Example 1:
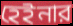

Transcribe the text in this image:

হেইনার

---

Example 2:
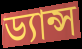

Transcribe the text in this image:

ড্যান্স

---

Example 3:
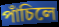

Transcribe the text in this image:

পাঁচিলে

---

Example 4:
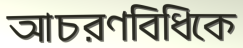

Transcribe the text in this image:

আচরণবিধিকে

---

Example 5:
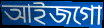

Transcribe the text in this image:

আইজগো